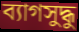
ব্যাগসুদ্ধু